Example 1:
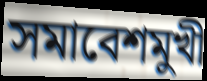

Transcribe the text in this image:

সমাবেশমুখী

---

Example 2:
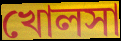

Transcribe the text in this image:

খোলসা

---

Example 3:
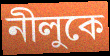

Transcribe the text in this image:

নীলুকে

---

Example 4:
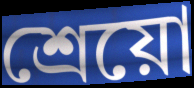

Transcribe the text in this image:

শ্রেয়ো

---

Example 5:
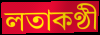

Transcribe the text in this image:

লতাকণ্ঠী